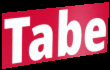
Tabe